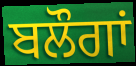
ਬਲੌਗਾਂ